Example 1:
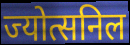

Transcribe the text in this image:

ज्योत्सनिल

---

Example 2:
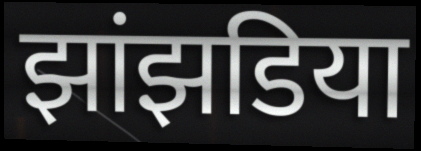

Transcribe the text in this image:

झांझडिया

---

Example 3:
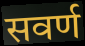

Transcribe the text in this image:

सवर्ण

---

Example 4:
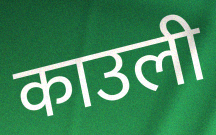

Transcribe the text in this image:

काउली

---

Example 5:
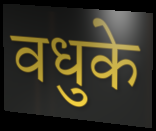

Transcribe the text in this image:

वधुके